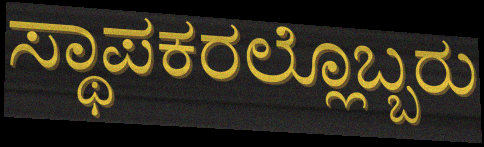
ಸ್ಥಾಪಕರಲ್ಲೊಬ್ಬರು